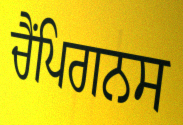
ਚੈਂਪਿਗਨਸ